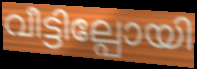
വീട്ടില്പോയി